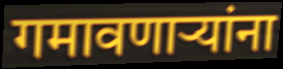
गमावणाऱ्यांना